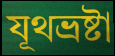
যূথভ্রষ্টা